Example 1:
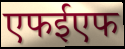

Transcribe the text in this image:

एफईएफ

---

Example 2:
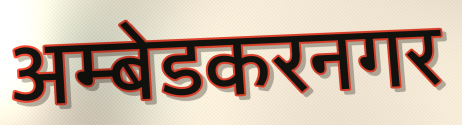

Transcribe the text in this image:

अम्बेडकरनगर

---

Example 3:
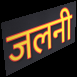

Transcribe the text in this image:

जलनी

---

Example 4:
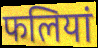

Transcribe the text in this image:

फलियां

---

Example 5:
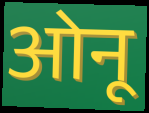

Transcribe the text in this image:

ओनू